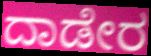
ದಾಡೇರ